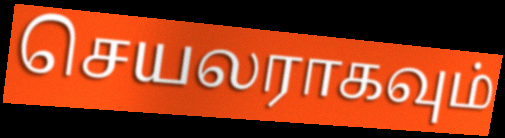
செயலராகவும்